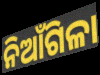
ନିଆଁଗିଳା